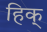
हिक्